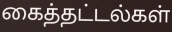
கைத்தட்டல்கள்